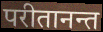
परीतानन्त